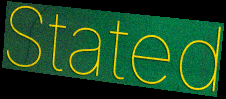
Stated